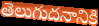
తెలుగుదనానికి